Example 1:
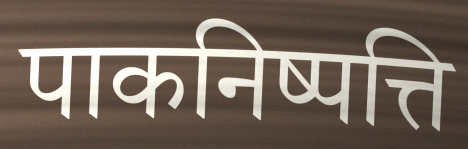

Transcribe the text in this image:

पाकनिष्पत्ति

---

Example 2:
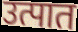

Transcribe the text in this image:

उत्पात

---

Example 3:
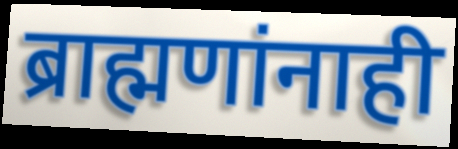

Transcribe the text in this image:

ब्राह्मणांनाही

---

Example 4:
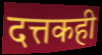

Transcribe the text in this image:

दत्तकही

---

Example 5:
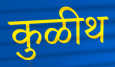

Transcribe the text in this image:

कुळीथ